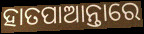
ହାତପାଆନ୍ତାରେ